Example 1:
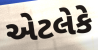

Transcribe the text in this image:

એટલેકે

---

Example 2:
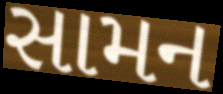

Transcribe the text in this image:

સામન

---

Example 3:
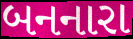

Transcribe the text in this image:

બનનારા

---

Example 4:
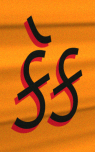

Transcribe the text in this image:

કૅક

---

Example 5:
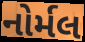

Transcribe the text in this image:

નોર્મલ